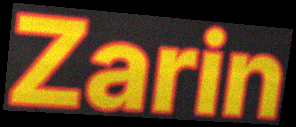
Zarin